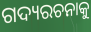
ଗଦ୍ୟରଚନାକୁ